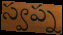
స్వప్న